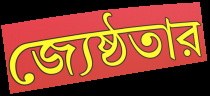
জ্যেষ্ঠতার